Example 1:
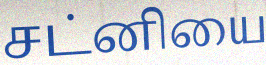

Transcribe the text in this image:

சட்னியை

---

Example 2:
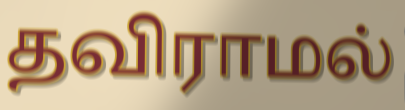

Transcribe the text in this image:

தவிராமல்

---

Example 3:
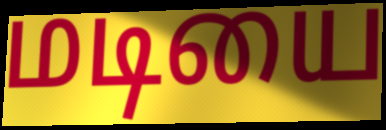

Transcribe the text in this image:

மடியை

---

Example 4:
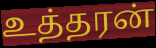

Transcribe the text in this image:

உத்தரன்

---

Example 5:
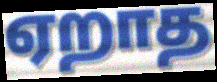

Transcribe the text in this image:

ஏறாத